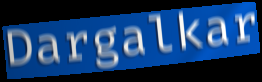
Dargalkar